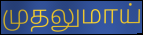
முதலுமாய்